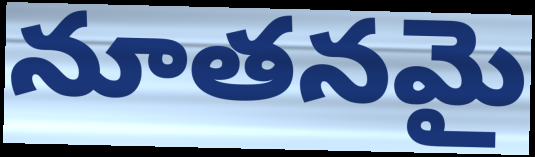
నూతనమై